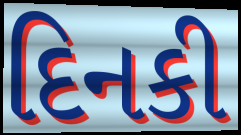
દિનકી